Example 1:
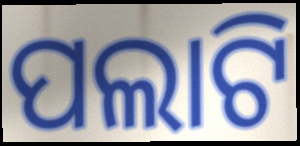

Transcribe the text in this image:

ପଲାଟି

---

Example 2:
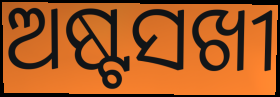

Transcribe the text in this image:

ଅଷ୍ଟସଖୀ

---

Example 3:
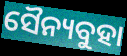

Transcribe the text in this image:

ସୈନ୍ୟବୁହା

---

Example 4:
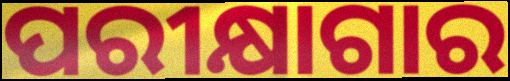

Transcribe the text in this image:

ପରୀକ୍ଷାଗାର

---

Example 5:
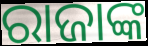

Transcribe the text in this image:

ରାଜାଙ୍କ